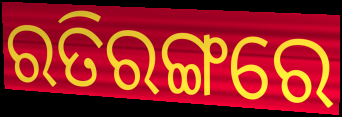
ରତିରଙ୍ଗରେ